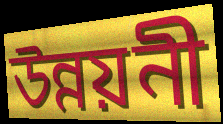
উন্নয়নী